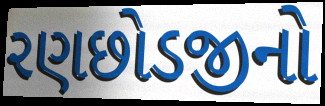
રણછોડજીનો